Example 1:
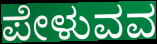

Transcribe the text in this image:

ಪೇಳುವವ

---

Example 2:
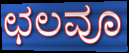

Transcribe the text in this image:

ಛಲವೂ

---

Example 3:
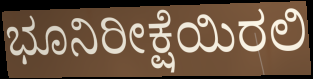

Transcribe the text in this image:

ಭೂನಿರೀಕ್ಷೆಯಿರಲಿ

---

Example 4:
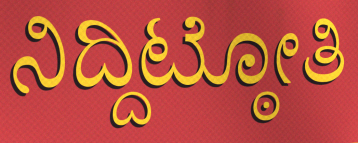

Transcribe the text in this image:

ನಿದ್ದಿಟ್ಠೋತಿ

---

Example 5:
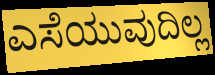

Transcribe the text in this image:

ಎಸೆಯುವುದಿಲ್ಲ